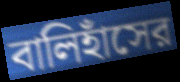
বালিহাঁসের